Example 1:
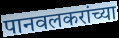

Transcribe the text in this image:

पानवलकरांच्या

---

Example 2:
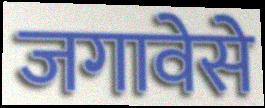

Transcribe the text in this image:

जगावेसे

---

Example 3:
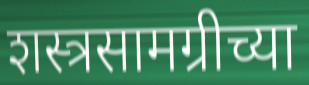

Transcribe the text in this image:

शस्त्रसामग्रीच्या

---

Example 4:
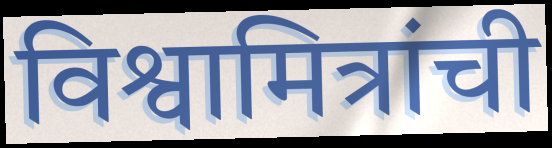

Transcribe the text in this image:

विश्वामित्रांची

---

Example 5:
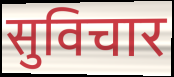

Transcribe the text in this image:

सुविचार